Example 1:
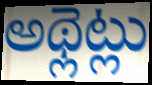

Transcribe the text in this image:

అథ్లెట్లు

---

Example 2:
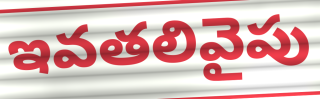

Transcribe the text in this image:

ఇవతలివైపు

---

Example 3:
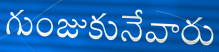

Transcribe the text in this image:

గుంజుకునేవారు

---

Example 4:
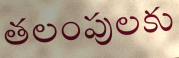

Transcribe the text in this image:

తలంపులకు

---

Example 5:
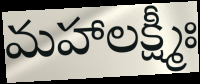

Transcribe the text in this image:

మహాలక్ష్మీః